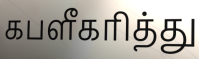
கபளீகரித்து